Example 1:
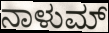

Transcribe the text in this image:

ನಾಳುಮ್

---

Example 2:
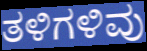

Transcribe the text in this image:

ತಳಿಗಳಿವು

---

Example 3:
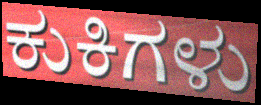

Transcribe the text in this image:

ಕುಕಿಗಳು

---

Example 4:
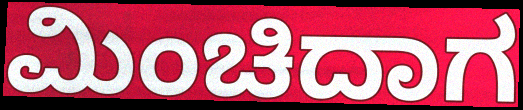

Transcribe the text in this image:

ಮಿಂಚಿದಾಗ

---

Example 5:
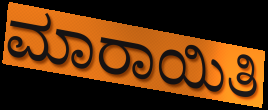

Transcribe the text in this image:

ಮಾರಾಯಿತಿ